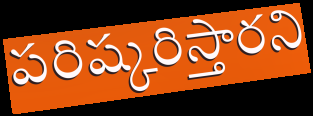
పరిష్కరిస్తారని